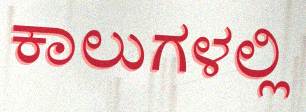
ಕಾಲುಗಳಲ್ಲಿ